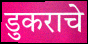
डुकराचे